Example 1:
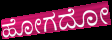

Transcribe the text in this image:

ಹೋಗದೋ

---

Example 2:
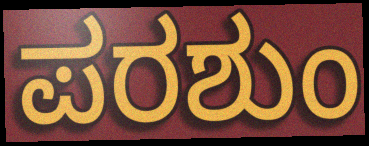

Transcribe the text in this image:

ಪರಶುಂ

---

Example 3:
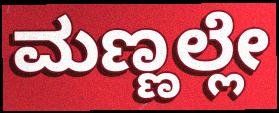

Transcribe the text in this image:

ಮಣ್ಣಲ್ಲೇ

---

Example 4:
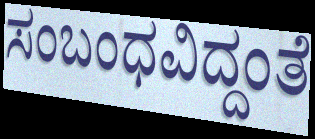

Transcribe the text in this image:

ಸಂಬಂಧವಿದ್ದಂತೆ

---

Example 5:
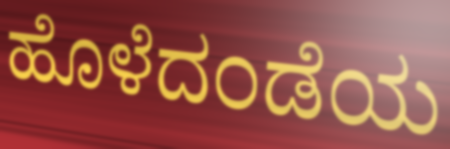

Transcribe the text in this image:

ಹೊಳೆದಂಡೆಯ